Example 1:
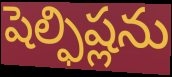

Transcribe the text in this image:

షెల్ఫిష్లను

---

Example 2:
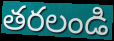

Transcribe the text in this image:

తరలండి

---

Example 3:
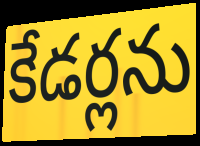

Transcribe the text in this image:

కేడర్లను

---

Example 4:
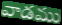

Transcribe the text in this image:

వాడము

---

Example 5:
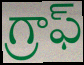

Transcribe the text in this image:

గ్రాఫ్